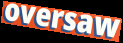
oversaw